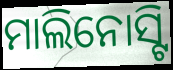
ମାଲିନୋସ୍ଟି